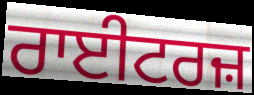
ਰਾਈਟਰਜ਼